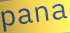
pana